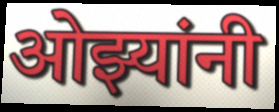
ओझ्यांनी